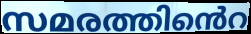
സമരത്തിൻെറ